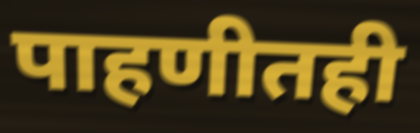
पाहणीतही